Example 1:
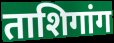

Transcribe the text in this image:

ताशिगांग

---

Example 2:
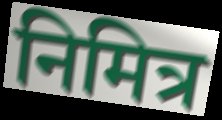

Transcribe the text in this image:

निमित्र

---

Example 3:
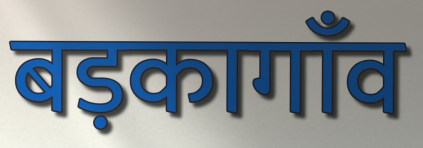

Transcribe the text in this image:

बड़कागाँव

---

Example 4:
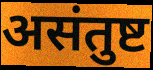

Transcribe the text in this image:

असंतुष्ट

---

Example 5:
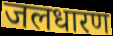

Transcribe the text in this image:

जलधारण